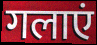
गलाएं